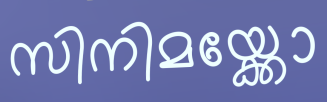
സിനിമയ്ക്കോ